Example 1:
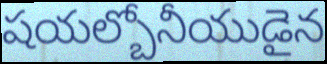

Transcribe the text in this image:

షయల్బోనీయుడైన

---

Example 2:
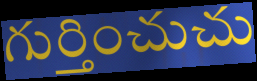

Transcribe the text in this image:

గుర్తించుచు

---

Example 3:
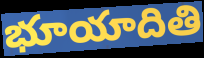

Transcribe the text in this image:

భూయాదితి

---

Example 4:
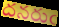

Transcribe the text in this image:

దనరుఁ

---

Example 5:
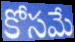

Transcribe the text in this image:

కోసమే